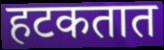
हटकतात